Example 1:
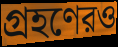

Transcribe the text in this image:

গ্রহণেরও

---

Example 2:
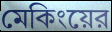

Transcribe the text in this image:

মেকিংয়ের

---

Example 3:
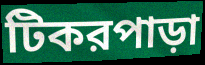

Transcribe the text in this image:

টিকরপাড়া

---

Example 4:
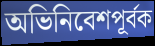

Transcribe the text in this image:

অভিনিবেশপূর্বক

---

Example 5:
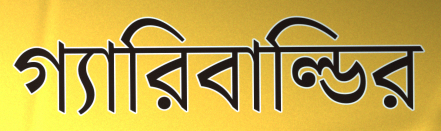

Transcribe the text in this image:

গ্যারিবাল্ডির